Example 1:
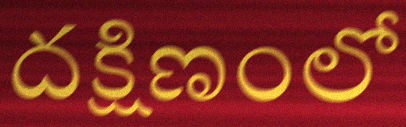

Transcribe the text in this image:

దక్షిణంలో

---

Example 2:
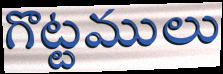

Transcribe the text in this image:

గొట్టములు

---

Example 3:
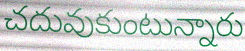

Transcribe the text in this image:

చదువుకుంటున్నారు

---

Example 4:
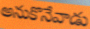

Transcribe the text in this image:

అనుకొనేవాడు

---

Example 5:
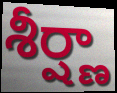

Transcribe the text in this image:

శీర్ష్ణా